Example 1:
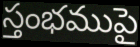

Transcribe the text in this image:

స్తంభముపై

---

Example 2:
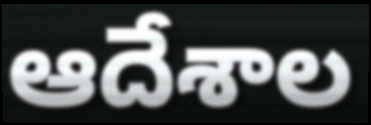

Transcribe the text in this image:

ఆదేశాల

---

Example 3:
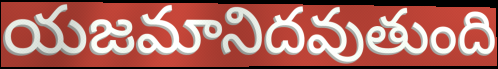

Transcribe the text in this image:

యజమానిదవుతుంది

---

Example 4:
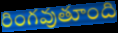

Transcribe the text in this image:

రింగవుతూంది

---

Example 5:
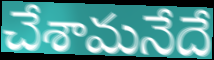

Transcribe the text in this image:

చేశామనేదే